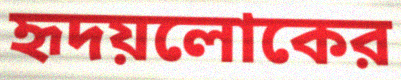
হৃদয়লোকের